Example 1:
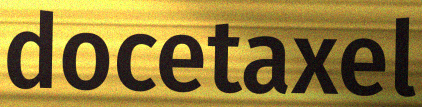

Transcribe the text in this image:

docetaxel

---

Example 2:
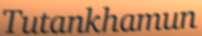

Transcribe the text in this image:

Tutankhamun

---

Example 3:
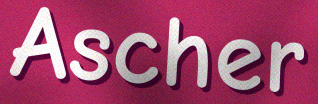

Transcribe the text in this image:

Ascher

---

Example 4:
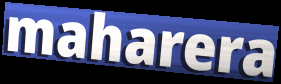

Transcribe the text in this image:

maharera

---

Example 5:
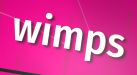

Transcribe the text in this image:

wimps